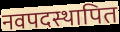
नवपदस्थापित